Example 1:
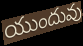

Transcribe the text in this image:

యుందువు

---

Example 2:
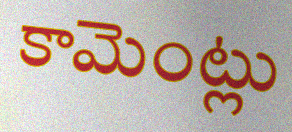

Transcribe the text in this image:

కామెంట్లు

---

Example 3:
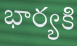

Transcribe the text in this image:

భార్యకి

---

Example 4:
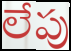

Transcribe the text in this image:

లేపు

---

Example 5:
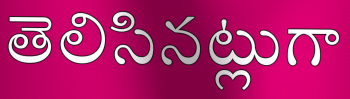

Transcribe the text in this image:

తెలిసినట్లుగా